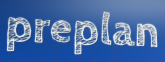
preplan